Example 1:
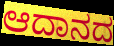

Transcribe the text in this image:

ಆದಾನದ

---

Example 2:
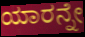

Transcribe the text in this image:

ಯಾರನ್ನೇ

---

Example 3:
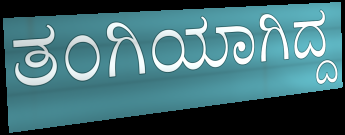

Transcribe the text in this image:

ತಂಗಿಯಾಗಿದ್ದ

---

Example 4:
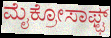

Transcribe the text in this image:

ಮೈಕ್ರೋಸಾಫ್ಟ್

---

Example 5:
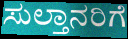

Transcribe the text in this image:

ಸುಲ್ತಾನರಿಗೆ